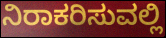
ನಿರಾಕರಿಸುವಲ್ಲಿ